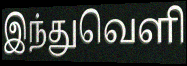
இந்துவெளி